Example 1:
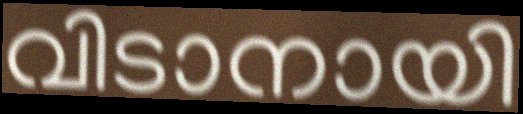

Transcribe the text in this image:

വിടാനായി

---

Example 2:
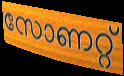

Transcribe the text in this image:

സോണറ്റ്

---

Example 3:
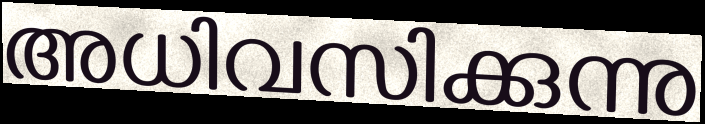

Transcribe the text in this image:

അധിവസിക്കുന്നു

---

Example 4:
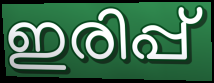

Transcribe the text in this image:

ഇരിപ്പ്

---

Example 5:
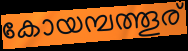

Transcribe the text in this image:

കോയമ്പത്തൂര്